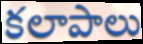
కలాపాలు